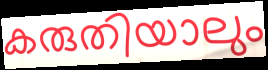
കരുതിയാലും